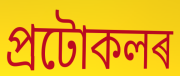
প্ৰটোকলৰ